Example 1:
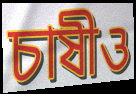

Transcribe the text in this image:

চাষীও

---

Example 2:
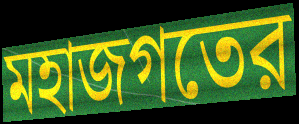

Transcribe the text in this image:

মহাজগতের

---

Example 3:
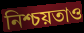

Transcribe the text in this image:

নিশ্চয়তাও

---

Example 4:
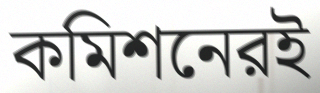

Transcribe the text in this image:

কমিশনেরই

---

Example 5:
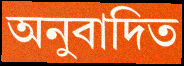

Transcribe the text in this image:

অনুবাদিত